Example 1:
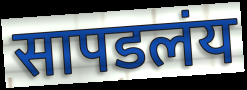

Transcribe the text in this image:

सापडलंय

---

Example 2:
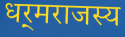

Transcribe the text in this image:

धर्मराजस्य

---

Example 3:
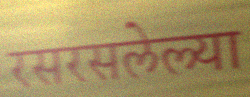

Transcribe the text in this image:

रसरसलेल्या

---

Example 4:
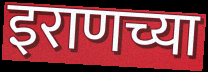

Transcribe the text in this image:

इराणच्या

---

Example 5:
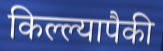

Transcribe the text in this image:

किल्ल्यापैकी